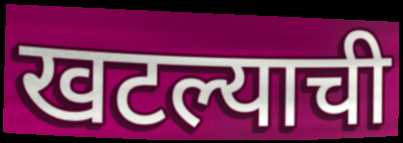
खटल्याची